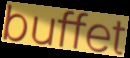
buffet